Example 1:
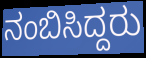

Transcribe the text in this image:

ನಂಬಿಸಿದ್ದರು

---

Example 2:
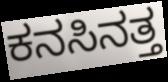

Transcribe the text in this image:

ಕನಸಿನತ್ತ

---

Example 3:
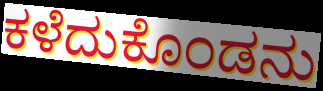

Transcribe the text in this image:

ಕಳೆದುಕೊಂಡನು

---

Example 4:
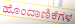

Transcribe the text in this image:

ಹೊಂದಾಣಿಕೆಗಳ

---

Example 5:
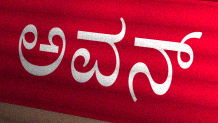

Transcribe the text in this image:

ಅವನ್